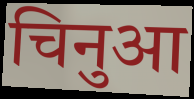
चिनुआ